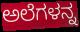
ಅಲೆಗಳನ್ನ